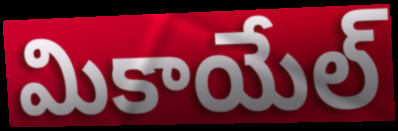
మికాయేల్